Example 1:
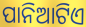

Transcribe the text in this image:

ପାନିଆଟିଏ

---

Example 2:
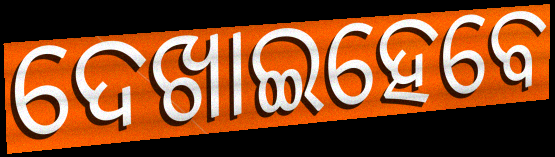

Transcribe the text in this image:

ଦେଖାଇହେବେ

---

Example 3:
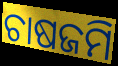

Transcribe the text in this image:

ଚାଷଜମି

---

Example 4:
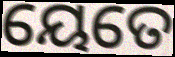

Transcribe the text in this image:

ୟେତେ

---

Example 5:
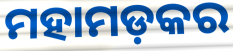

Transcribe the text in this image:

ମହାମଡ଼କର